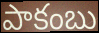
పాకంబు